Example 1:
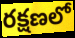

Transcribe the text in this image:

రక్షణలో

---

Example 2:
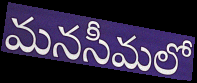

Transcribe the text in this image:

మనసీమలో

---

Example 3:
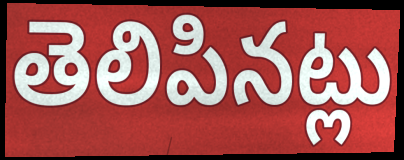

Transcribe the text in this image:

తెలిపినట్లు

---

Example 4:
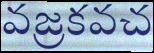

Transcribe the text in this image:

వజ్రకవచ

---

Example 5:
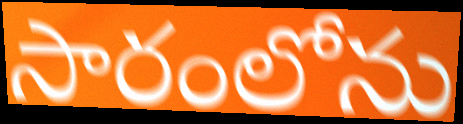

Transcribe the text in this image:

సారంలోను